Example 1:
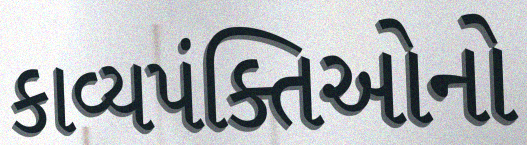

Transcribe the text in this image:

કાવ્યપંક્તિઓનો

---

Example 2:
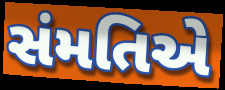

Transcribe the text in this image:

સંમતિએ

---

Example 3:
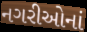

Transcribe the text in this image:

નગરીઓનાં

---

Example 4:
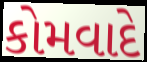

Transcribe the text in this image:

કોમવાદે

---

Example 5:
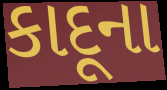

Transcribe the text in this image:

કાદૂના